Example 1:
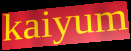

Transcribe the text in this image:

kaiyum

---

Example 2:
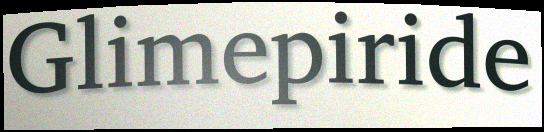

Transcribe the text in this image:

Glimepiride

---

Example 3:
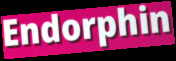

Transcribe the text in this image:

Endorphin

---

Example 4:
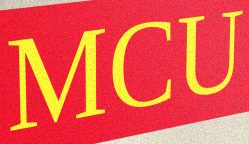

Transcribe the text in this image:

MCU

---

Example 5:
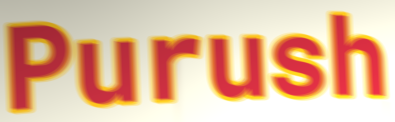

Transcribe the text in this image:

Purush